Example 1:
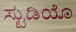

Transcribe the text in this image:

ಸ್ಟುಡಿಯೊ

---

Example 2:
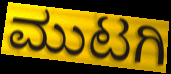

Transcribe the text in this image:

ಮುಟಗಿ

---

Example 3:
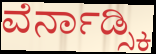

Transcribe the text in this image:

ವೆರ್ನಾಡ್ಸ್ಕಿ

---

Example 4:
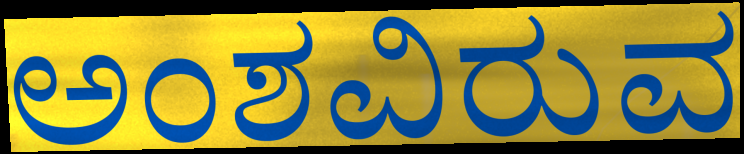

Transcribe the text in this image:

ಅಂಶವಿರುವ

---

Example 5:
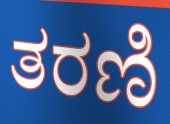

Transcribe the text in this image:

ತರಣಿ